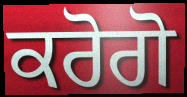
ਕਰੋਗੋ